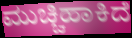
ಮುಚ್ಚಿಹಾಕಿದೆ